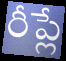
రీప్లే